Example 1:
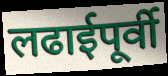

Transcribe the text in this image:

लढाईपूर्वी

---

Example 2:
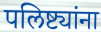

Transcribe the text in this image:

पलिष्ट्यांना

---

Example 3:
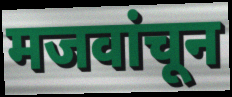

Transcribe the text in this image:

मजवांचून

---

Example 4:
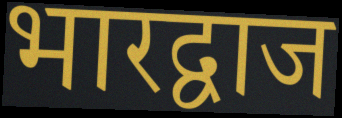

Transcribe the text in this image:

भारद्वाज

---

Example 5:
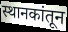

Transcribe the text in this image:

स्थानकांतून